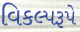
વિકલ્પરૂપે